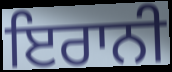
ਇਰਾਨੀ